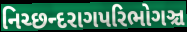
નિચ્છન્દરાગપરિભોગઞ્ચ